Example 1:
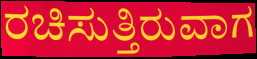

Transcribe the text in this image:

ರಚಿಸುತ್ತಿರುವಾಗ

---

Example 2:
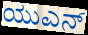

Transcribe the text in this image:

ಯುಎನ್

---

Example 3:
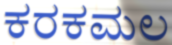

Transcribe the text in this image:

ಕರಕಮಲ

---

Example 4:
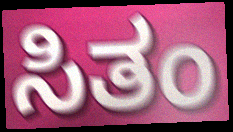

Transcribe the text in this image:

ಸಿತಂ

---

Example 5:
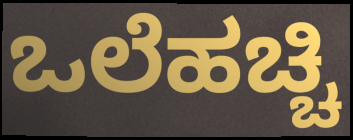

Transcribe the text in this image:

ಒಲೆಹಚ್ಚಿ